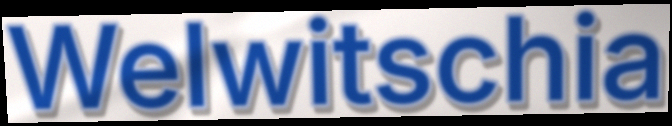
Welwitschia